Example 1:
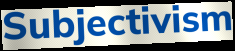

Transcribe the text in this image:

Subjectivism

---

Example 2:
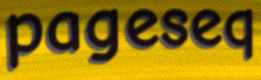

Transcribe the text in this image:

pageseq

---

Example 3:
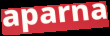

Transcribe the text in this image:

aparna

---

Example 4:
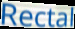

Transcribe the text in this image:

Rectal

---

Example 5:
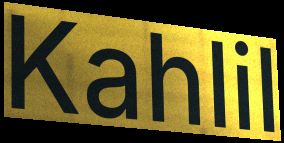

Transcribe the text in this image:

Kahlil